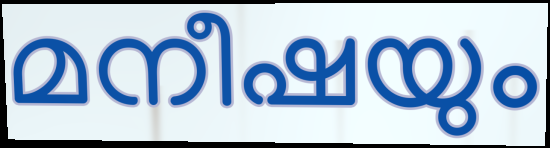
മനീഷയും